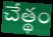
చేత్థం